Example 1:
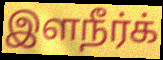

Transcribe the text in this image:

இளநீர்க்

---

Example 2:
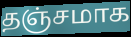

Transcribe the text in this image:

தஞ்சமாக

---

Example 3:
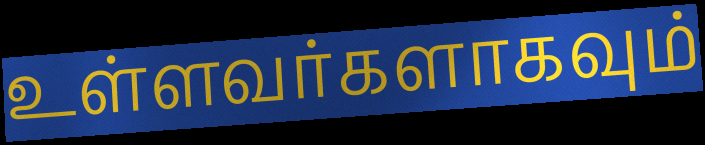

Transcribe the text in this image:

உள்ளவர்களாகவும்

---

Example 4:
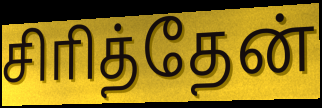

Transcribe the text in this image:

சிரித்தேன்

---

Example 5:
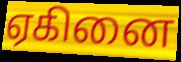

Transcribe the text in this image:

ஏகினை